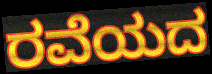
ರವೆಯದ